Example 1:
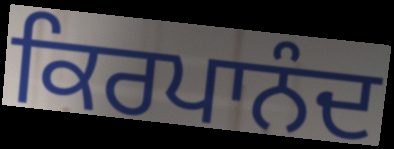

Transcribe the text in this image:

ਕਿਰਪਾਨੰਦ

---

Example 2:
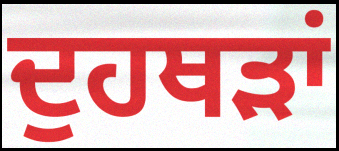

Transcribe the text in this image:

ਦੁਹਥੜਾਂ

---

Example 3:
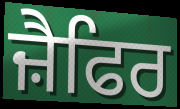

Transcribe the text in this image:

ਜ਼ੈਫਿਰ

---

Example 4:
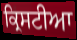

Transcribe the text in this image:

ਕ੍ਰਿਸਟੀਆ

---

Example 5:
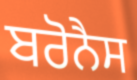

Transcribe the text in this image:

ਬਰੋਨੈਸ